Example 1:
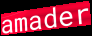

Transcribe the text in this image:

amader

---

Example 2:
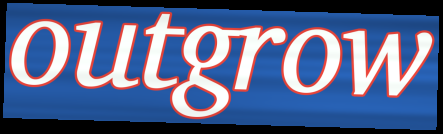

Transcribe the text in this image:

outgrow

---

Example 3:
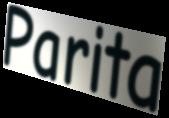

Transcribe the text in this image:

Parita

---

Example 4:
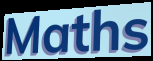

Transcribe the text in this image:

Maths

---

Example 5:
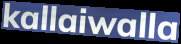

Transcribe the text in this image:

kallaiwalla